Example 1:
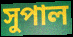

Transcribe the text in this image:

সুপাল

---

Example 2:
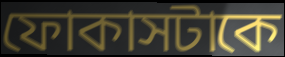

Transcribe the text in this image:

ফোকাসটাকে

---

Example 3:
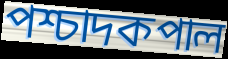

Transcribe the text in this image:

পশ্চাদকপাল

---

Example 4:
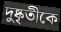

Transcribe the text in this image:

দুষ্কৃতীকে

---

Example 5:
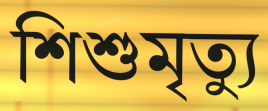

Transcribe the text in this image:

শিশুমৃত্যু